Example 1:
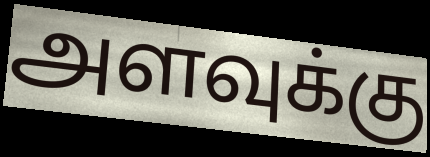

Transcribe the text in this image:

அளவுக்கு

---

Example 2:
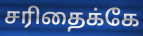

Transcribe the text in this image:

சரிதைக்கே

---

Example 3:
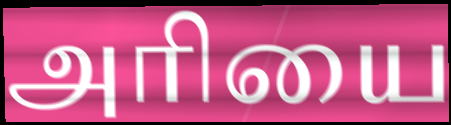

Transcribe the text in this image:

அரியை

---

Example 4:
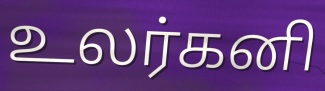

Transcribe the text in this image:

உலர்கனி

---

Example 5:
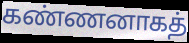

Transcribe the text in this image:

கண்ணனாகத்